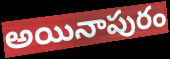
అయినాపురం